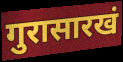
गुरासारखं